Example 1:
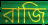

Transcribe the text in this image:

রাজি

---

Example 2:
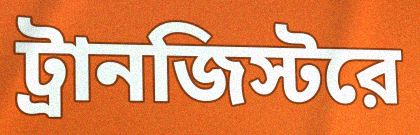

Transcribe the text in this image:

ট্রানজিস্টরে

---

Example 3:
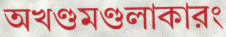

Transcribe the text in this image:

অখণ্ডমণ্ডলাকারং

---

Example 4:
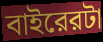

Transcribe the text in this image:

বাইরেরটা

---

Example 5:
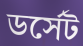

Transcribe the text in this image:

ডর্সেট